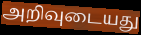
அறிவுடையது